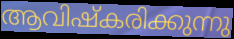
ആവിഷ്കരിക്കുന്നു